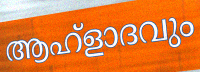
ആഹ്ളാദവും